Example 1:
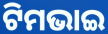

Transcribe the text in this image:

ଟିମଭାଇ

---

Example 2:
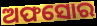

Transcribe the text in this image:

ଅଫସୋର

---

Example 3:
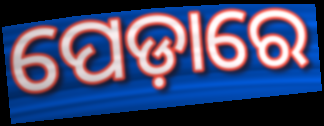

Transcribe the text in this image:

ପେଡ଼ାରେ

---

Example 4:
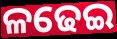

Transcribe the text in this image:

ଳଢେଇ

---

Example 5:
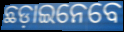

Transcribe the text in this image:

ଛଡ଼ାଇନେବେ